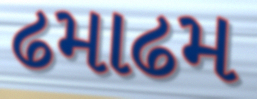
ઢમાઢમ